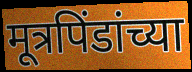
मूत्रपिंडांच्या